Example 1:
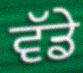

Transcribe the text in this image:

ਵੱਡੇ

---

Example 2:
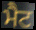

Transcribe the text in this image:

ਮੈਟ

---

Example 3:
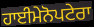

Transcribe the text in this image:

ਹਾਈਮੇਨੋਪਟੇਰਾ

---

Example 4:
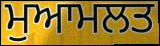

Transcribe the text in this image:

ਮੁਆਮਲਤ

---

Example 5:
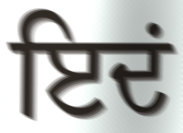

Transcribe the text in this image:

ਇਦਂ